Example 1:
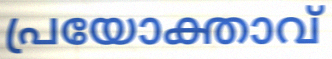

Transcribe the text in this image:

പ്രയോക്താവ്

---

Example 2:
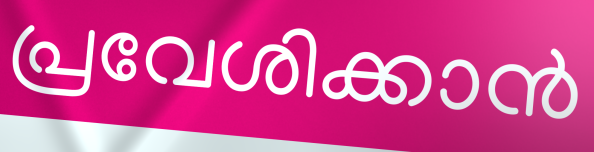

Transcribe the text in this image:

പ്രവേശിക്കാൻ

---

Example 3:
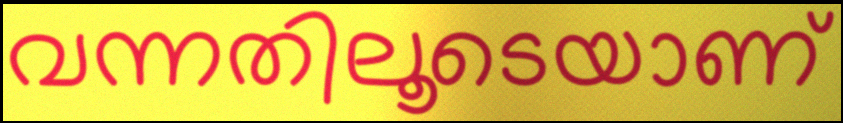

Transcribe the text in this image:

വന്നതിലൂടെയാണ്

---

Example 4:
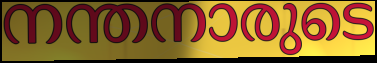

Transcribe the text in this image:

നന്തനാരുടെ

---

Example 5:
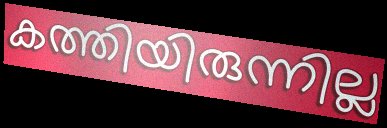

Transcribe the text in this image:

കത്തിയിരുന്നില്ല